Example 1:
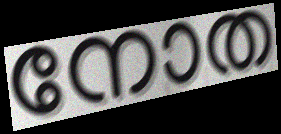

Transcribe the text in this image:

നോത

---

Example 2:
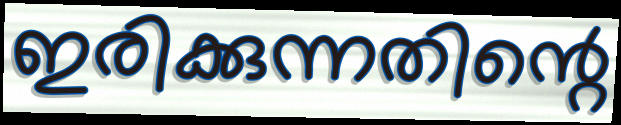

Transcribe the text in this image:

ഇരിക്കുന്നതിന്റെ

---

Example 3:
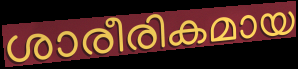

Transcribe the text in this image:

ശാരീരികമായ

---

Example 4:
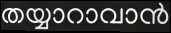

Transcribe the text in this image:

തയ്യാറാവാൻ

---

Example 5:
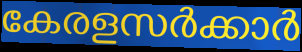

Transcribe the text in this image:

കേരളസർക്കാർ